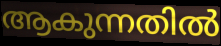
ആകുന്നതിൽ